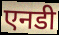
एनडी